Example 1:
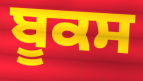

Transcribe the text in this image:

ਬੂਕਸ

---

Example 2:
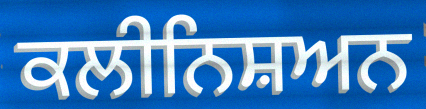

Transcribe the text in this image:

ਕਲੀਨਿਸ਼ਅਨ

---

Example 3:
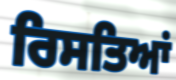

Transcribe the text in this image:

ਰਿਸਤਿਆਂ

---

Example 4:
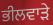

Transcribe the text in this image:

ਭੀਲਵਾੜੇ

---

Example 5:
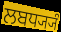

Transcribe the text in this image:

ਲਬਧ੍ਯ੍ਯੰ